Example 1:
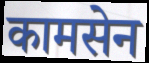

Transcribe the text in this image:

कामसेन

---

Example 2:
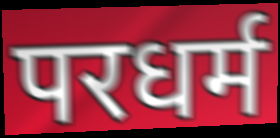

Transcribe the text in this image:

परधर्म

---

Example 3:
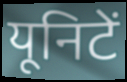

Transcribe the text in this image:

यूनिटें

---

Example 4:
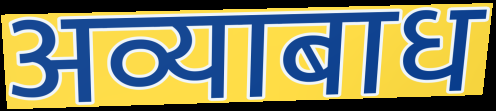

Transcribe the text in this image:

अव्याबाध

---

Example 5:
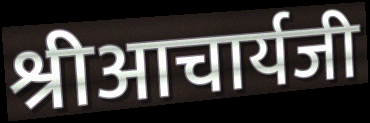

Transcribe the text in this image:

श्रीआचार्यजी